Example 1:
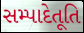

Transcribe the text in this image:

સમ્પાદેતૂતિ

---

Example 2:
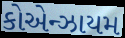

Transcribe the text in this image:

કોએન્ઝાયમ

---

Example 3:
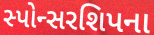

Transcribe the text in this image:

સ્પોન્સરશિપના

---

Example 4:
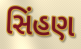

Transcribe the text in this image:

સિંહણ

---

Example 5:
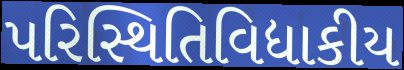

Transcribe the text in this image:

પરિસ્થિતિવિદ્યાકીય